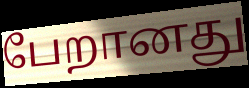
பேறானது